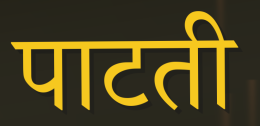
पाटती